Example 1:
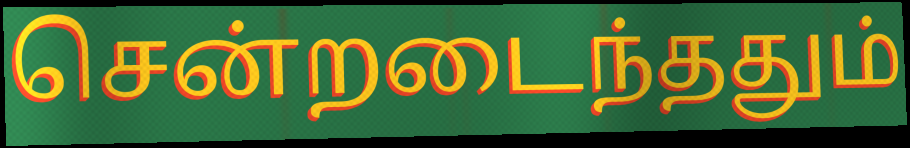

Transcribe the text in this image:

சென்றடைந்ததும்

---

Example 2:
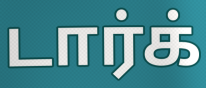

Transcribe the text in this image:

டார்க்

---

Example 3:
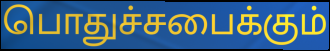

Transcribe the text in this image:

பொதுச்சபைக்கும்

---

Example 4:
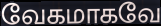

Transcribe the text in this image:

வேகமாகவே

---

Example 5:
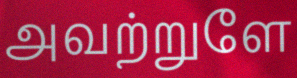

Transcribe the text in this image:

அவற்றுளே